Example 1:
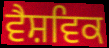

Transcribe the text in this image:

ਵੈਸ਼ਵਿਕ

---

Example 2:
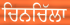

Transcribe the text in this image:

ਚਿਨਚਿੱਲਾ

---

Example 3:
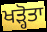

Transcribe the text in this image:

ਖੜ੍ਹੋਤਾ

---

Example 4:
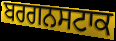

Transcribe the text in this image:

ਬਰਗਨਸਟਾਕ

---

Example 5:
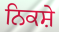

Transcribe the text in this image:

ਨਿਕਸ਼ੇ